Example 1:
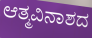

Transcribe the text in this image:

ಆತ್ಮವಿನಾಶದ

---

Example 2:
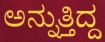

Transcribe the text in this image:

ಅನ್ನುತ್ತಿದ್ದ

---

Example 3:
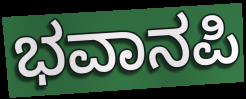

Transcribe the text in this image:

ಭವಾನಪಿ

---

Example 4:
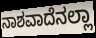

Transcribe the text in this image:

ನಾಶವಾದೆನಲ್ಲಾ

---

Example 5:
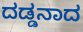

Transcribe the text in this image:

ದಡ್ಡನಾದ